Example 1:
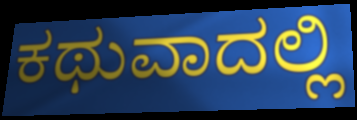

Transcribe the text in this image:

ಕಥುವಾದಲ್ಲಿ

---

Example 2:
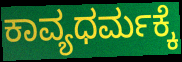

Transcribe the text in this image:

ಕಾವ್ಯಧರ್ಮಕ್ಕೆ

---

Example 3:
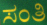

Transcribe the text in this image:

ಸಂತಿ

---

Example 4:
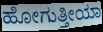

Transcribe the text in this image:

ಹೋಗುತ್ತೀಯಾ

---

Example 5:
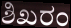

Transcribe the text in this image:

ಶಿಖರಂ